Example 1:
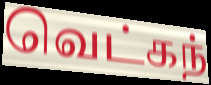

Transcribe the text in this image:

வெட்கந்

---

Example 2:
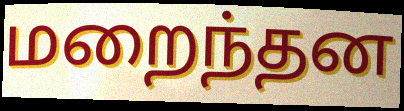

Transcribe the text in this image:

மறைந்தன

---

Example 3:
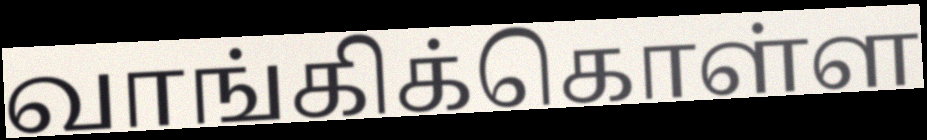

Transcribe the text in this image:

வாங்கிக்கொள்ள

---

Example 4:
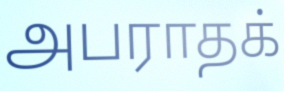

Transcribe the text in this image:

அபராதக்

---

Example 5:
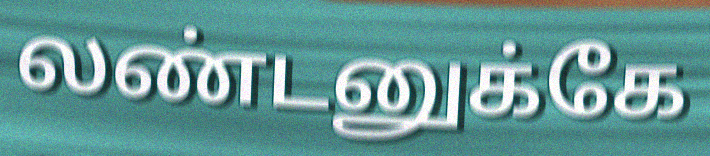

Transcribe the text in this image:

லண்டனுக்கே